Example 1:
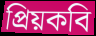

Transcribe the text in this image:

প্রিয়কবি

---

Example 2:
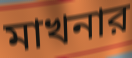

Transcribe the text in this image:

মাখনার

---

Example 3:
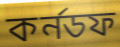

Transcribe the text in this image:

কর্নডফ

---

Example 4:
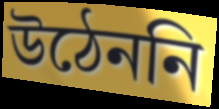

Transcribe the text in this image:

উঠেননি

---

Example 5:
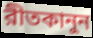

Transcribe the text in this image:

রীতকানুন